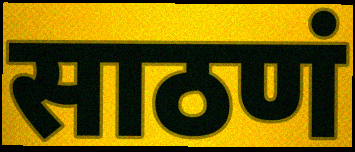
साठणं